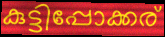
കുട്ടിപ്പോക്കര്